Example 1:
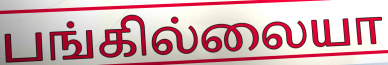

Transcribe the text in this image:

பங்கில்லையா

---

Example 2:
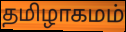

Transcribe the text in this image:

தமிழாகமம்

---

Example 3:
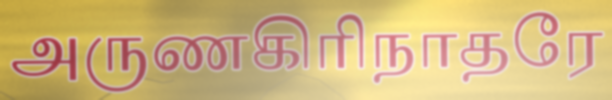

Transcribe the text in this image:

அருணகிரிநாதரே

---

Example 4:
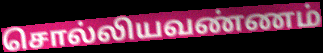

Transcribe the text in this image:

சொல்லியவண்ணம்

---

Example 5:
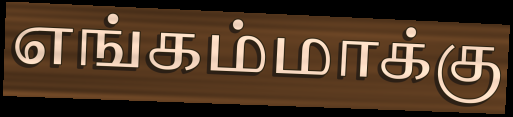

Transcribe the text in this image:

எங்கம்மாக்கு